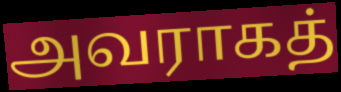
அவராகத்